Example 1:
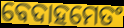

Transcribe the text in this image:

ବେଦାହମେତଂ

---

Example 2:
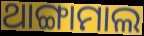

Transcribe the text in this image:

ଥାଙ୍ଗାମାଲ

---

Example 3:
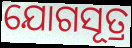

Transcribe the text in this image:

ଯୋଗସୂତ୍ର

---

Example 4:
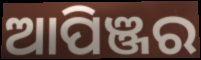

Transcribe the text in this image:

ଆପିଞ୍ଜର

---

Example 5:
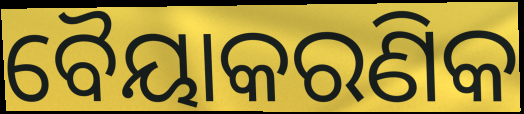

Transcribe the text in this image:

ବୈୟାକରଣିକ